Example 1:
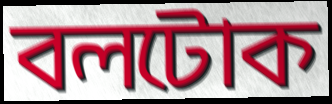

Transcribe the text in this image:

বলটোক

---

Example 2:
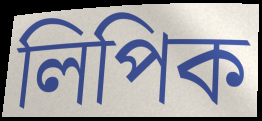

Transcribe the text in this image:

লিপিক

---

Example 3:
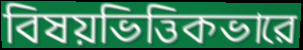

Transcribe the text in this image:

বিষয়ভিত্তিকভাৱে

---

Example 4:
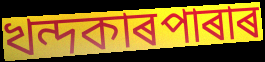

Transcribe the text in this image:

খন্দকাৰপাৰাৰ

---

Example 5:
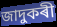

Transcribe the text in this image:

জাদুকৰী